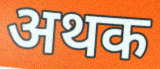
अथक